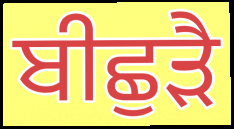
ਬੀਛੁੜੈ